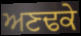
ਅਣਢਕੇ